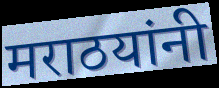
मराठयांनी